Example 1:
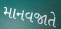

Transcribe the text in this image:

માનવજાતે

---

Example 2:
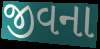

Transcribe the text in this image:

જીવના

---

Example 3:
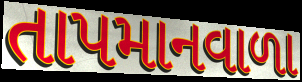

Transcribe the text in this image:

તાપમાનવાળા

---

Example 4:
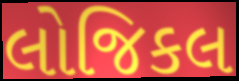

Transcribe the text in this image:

લોજિકલ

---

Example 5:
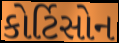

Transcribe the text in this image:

કોર્ટિસોન